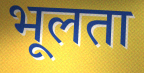
भूलता